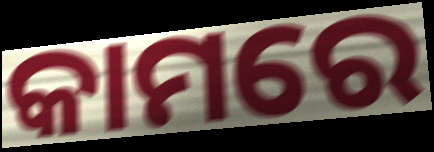
କାମରେ